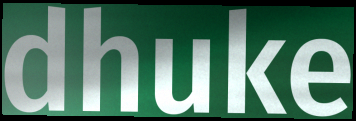
dhuke